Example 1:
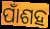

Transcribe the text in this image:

ପାଁଶହ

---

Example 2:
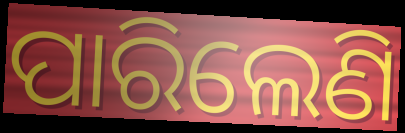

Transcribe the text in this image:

ପାରିଲେଣି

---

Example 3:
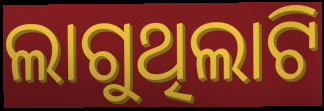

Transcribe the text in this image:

ଲାଗୁଥିଲାଟି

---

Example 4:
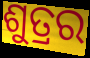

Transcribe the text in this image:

ଶୁତ୍ରର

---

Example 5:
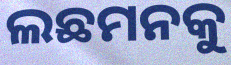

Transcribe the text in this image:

ଲଛମନକୁ